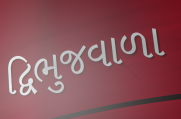
દ્વિભુજવાળા